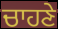
ਚਾਹਣੇ